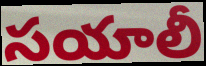
సయాలీ